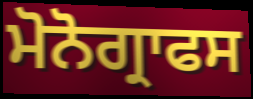
ਮੋਨੋਗ੍ਰਾਫਸ